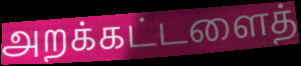
அறக்கட்டளைத்